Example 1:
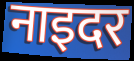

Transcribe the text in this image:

नाइदर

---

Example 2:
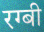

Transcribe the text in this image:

रग्‍बी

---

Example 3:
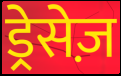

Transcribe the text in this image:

ड्रेसेज़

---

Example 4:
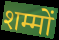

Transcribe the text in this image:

शम्मों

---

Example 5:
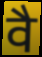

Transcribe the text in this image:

वै